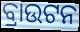
ବ୍ରାଉଟନ